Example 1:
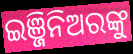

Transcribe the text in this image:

ଇଞ୍ଜିନିଅରଙ୍କୁ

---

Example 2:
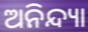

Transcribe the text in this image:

ଅନିନ୍ଦ୍ୟା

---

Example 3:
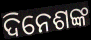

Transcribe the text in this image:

ଦିନେଶଙ୍କ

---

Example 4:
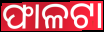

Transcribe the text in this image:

ଫାଳଟା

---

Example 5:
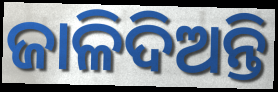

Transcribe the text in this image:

ଜାଳିଦିଅନ୍ତି